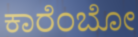
ಕಾರೆಂಬೋ